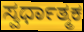
ಸ್ವರ್ಧಾತ್ಮಕ